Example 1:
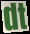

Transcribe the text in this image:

dt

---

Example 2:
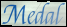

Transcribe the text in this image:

Medal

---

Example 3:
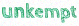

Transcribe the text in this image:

unkempt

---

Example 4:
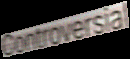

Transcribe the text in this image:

Controversial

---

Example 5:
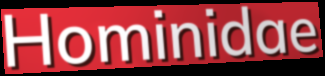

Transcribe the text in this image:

Hominidae